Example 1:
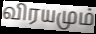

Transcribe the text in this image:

விரயமும்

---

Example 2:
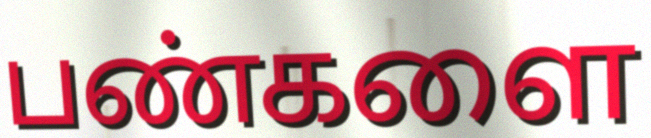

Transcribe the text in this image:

பண்களை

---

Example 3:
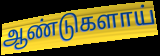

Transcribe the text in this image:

ஆண்டுகளாய்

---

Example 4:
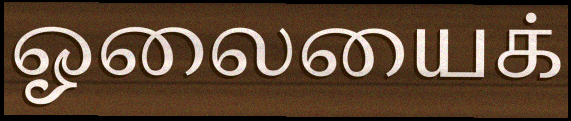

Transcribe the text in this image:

ஓலையைக்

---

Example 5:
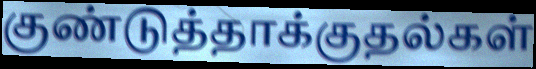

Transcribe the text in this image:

குண்டுத்தாக்குதல்கள்